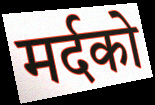
मर्दको